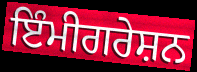
ਇੰਮੀਗਰੇਸ਼ਨ